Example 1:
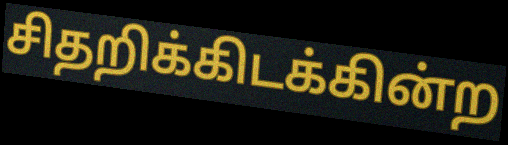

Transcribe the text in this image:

சிதறிக்கிடக்கின்ற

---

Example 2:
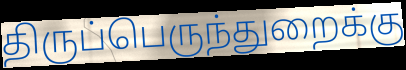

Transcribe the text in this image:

திருப்பெருந்துறைக்கு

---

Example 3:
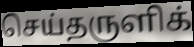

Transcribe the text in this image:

செய்தருளிக்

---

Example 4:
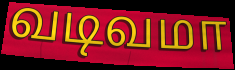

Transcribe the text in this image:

வடிவமா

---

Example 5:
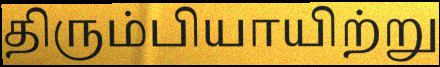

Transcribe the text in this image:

திரும்பியாயிற்று